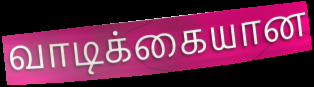
வாடிக்கையான